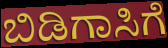
ಬಿಡಿಗಾಸಿಗೆ